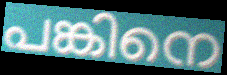
പങ്കിനെ